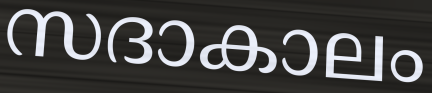
സദാകാലം